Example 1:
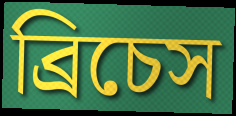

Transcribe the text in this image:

ব্রিচেস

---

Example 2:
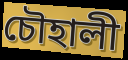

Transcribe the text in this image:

চৌহালী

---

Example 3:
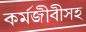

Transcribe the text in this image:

কর্মজীবীসহ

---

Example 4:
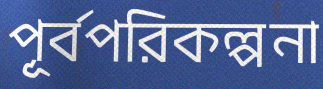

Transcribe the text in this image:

পূর্বপরিকল্পনা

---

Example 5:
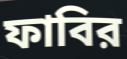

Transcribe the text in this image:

ফাবির